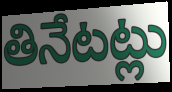
తినేటట్లు